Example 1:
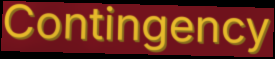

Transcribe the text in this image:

Contingency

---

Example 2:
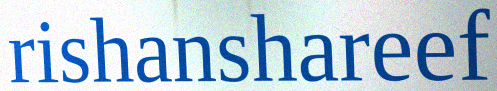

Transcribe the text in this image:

rishanshareef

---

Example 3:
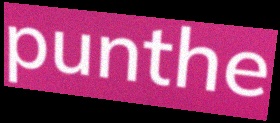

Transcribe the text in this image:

punthe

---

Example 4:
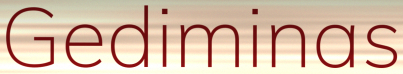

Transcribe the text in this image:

Gediminas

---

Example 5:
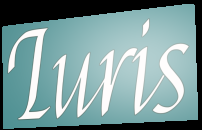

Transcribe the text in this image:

Iuris